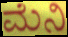
ಮೆನಿ